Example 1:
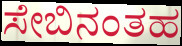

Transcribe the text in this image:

ಸೇಬಿನಂತಹ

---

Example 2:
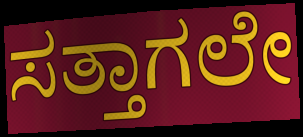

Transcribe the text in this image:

ಸತ್ತಾಗಲೇ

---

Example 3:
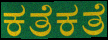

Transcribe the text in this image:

ಕತೆಕತೆ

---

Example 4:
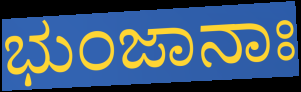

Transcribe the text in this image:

ಭುಂಜಾನಾಃ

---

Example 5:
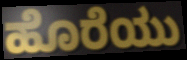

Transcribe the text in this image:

ಹೊರೆಯು